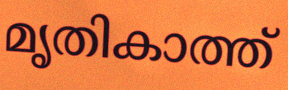
മൃതികാത്ത്